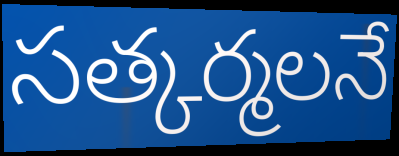
సత్కర్మలనే